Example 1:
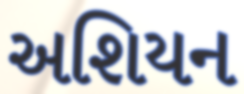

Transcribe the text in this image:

અશિયન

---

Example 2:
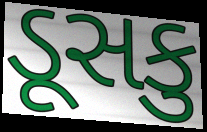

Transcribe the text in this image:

ડૂસકુ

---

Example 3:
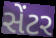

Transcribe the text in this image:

સેંટર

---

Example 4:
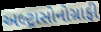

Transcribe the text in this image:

અલ્ટ્રાસોનોગ્રાફી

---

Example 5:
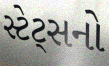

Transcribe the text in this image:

સ્ટેટ્સનો